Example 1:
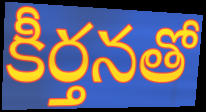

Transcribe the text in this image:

కీర్తనతో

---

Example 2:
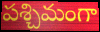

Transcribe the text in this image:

పశ్చిమంగా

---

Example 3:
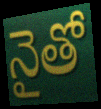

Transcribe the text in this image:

నైతో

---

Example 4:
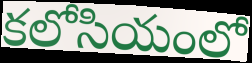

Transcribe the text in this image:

కలోసియంలో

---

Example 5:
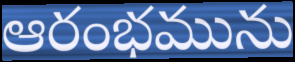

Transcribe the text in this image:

ఆరంభమును